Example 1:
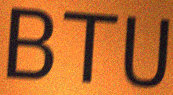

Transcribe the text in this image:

BTU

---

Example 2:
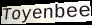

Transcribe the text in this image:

Toyenbee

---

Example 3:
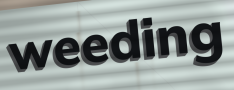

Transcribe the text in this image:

weeding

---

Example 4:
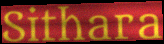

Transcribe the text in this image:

Sithara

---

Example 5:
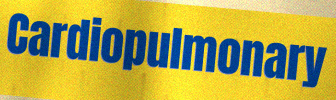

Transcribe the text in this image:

Cardiopulmonary